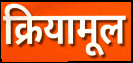
क्रियामूल